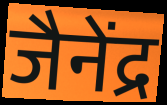
जैनेंद्र